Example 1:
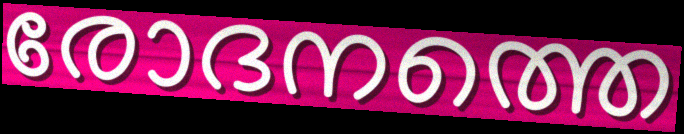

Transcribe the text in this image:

രോദനത്തെ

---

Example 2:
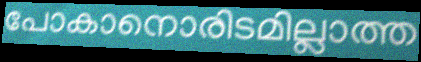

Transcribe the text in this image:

പോകാനൊരിടമില്ലാത്ത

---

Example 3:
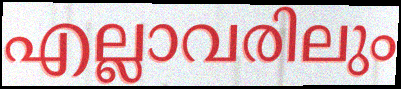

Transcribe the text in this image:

എല്ലാവരിലും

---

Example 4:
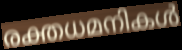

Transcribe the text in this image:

രക്തധമനികൾ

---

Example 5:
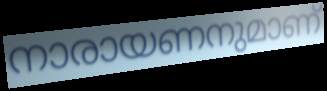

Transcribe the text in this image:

നാരായണനുമാണ്